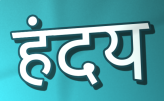
हंदय